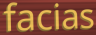
facias